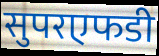
सुपरएफडी